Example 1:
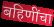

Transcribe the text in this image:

बहिणींचा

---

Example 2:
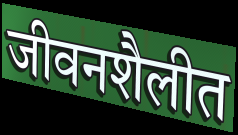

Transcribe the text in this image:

जीवनशैलीत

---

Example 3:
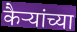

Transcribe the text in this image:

कैऱ्यांच्या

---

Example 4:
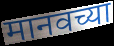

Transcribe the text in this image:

मानवच्या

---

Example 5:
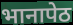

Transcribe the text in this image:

भानापेठ